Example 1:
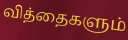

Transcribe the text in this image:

வித்தைகளும்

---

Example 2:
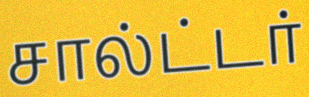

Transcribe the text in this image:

சால்ட்டர்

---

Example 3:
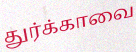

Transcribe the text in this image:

துர்க்காவை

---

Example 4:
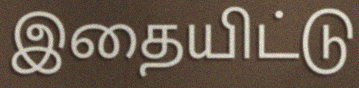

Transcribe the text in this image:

இதையிட்டு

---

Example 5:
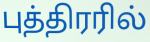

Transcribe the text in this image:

புத்திரரில்